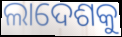
ଲାଦେଶକୁ